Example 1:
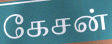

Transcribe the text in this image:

கேசன்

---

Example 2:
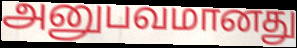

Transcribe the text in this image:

அனுபவமானது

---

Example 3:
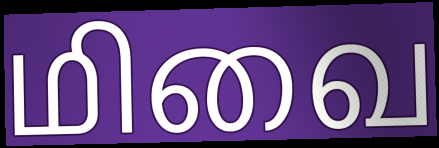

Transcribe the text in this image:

மிவை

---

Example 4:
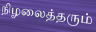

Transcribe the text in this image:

நிழலைத்தரும்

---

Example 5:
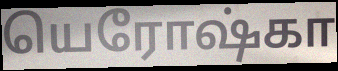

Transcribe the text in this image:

யெரோஷ்கா